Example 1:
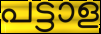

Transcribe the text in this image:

പട്ടാള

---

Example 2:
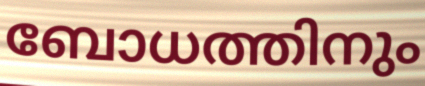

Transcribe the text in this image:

ബോധത്തിനും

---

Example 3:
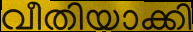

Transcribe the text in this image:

വീതിയാക്കി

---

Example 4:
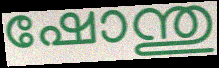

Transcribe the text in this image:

ഷോന്തു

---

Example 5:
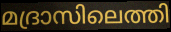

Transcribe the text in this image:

മദ്രാസിലെത്തി